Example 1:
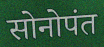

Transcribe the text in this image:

सोनोपंत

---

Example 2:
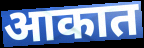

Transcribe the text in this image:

आकात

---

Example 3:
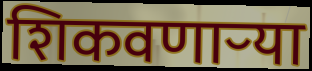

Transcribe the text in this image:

शिकवणाऱ्या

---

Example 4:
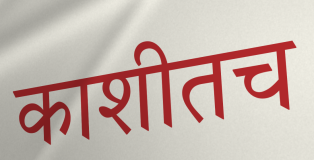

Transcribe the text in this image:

काशीतच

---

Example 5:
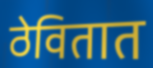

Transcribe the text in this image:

ठेवितात